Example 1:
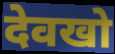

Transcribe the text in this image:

देवखो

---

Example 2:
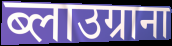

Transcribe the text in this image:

ब्लाउग्राना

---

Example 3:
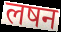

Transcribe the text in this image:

लषन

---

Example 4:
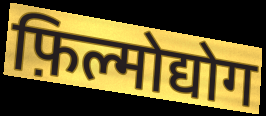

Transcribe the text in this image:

फ़िल्मोद्योग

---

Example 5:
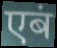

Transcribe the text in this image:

एबं